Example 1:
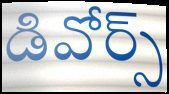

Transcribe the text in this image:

డివోర్స్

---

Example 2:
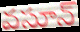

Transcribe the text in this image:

వసూన్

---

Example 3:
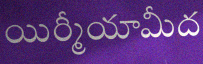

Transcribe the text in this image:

యిర్మీయామీద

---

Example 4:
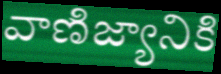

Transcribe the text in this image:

వాణిజ్యానికి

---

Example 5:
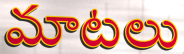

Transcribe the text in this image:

మాటలు